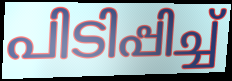
പിടിപ്പിച്ച്